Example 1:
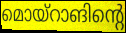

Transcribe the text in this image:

മൊയ്റാങിന്റെ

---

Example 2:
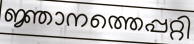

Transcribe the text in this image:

ജ്ഞാനത്തെപ്പറ്റി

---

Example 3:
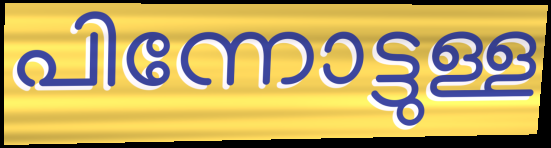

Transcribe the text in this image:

പിന്നോട്ടുള്ള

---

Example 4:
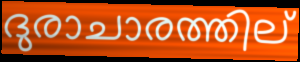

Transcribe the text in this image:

ദുരാചാരത്തില്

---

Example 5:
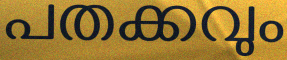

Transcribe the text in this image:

പതക്കവും